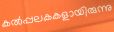
കൽപ്പലകകളായിരുന്നു